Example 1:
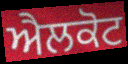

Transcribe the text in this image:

ਐਲਕੋਟ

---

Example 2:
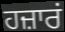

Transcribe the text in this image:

ਹਜ਼ਾਰਂ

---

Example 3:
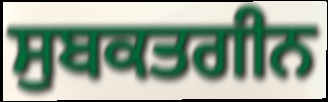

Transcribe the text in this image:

ਸੁਬਕਤਗੀਨ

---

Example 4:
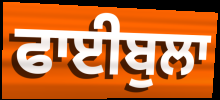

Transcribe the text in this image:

ਫਾਈਬੁਲਾ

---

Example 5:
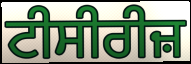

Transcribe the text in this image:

ਟੀਸੀਰੀਜ਼